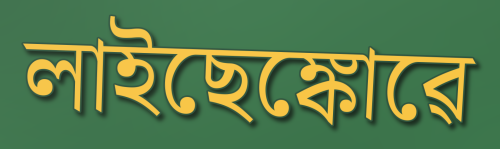
লাইছেঙ্কোৱে